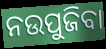
ନଉପୁଜିବା